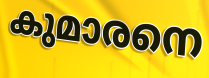
കുമാരനെ